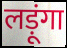
लड़ूंगा